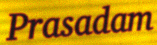
Prasadam